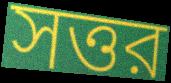
সত্তর